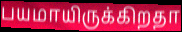
பயமாயிருக்கிறதா